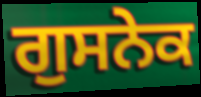
ਗੁਸਨੇਕ